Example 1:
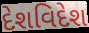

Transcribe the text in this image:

દેશવિદેશ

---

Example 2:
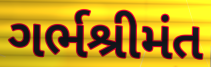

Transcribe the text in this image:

ગર્ભશ્રીમંત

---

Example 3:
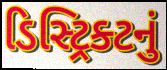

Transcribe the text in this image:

ડિસ્ટ્રિક્ટનું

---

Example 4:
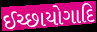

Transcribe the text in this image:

ઈચ્છાયોગાદિ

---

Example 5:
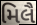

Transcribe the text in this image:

મિલૈ